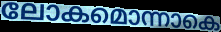
ലോകമൊന്നാകെ